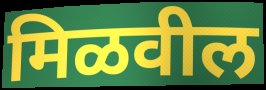
मिळवील